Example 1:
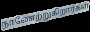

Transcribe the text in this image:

நாணேற்றுகிறார்கள்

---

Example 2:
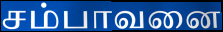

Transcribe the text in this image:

சம்பாவனை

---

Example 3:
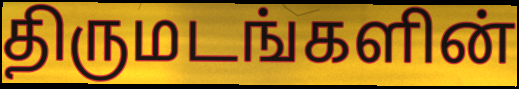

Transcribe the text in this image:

திருமடங்களின்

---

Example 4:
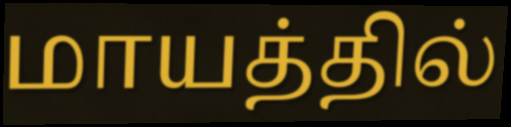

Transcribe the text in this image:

மாயத்தில்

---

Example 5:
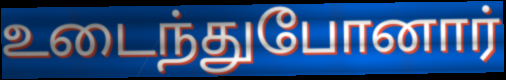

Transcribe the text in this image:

உடைந்துபோனார்